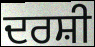
ਦਰਸ਼ੀ